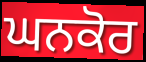
ਘਨਕੋਰ